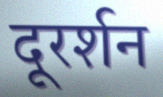
दूरर्शन